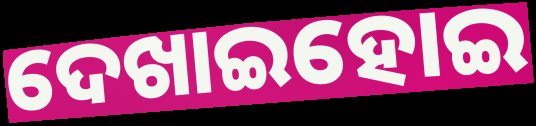
ଦେଖାଇହୋଇ